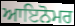
ਆਇਨੋਮਰ